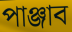
পাঞ্জাব